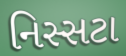
નિસ્સટા